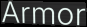
Armor